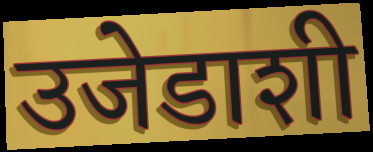
उजेडाशी